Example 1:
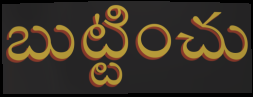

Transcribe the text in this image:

బుట్టించు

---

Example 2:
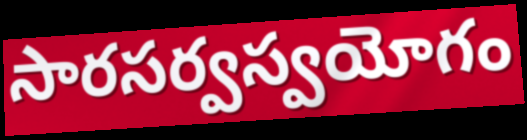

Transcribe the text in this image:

సారసర్వస్వయోగం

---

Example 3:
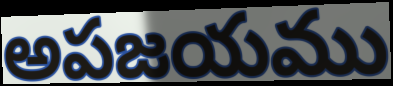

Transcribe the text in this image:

అపజయము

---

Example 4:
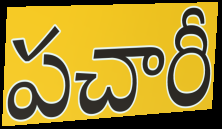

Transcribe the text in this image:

పచారీ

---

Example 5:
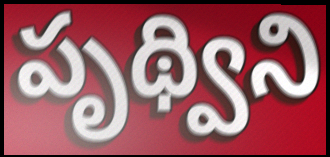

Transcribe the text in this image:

పృథ్విని